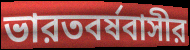
ভারতবর্ষবাসীর